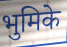
भुमिके